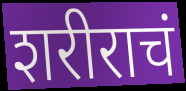
शरीराचं